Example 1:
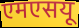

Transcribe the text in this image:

एमएसयू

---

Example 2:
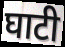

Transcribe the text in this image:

घाटी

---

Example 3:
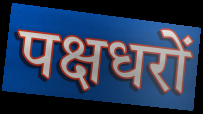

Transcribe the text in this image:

पक्षधरों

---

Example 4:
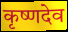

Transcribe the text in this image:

कृष्णदेव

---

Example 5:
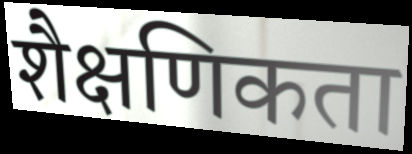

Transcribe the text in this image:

शैक्षणिकता